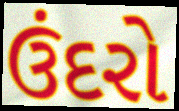
ઉંદરો